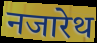
नजारेथ